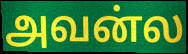
அவன்ல